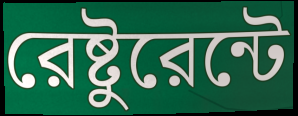
রেষ্টুরেন্টে